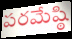
పరమేష్ఠి